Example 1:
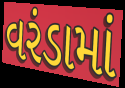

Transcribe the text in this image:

વરંડામાં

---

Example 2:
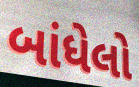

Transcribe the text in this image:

બાંધેલો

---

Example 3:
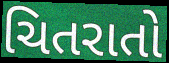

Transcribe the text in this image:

ચિતરાતો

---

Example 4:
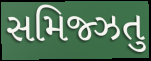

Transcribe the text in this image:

સમિજ્ઝતુ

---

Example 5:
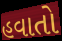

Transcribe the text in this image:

હવાતો